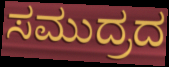
ಸಮುದ್ರದ